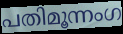
പതിമൂന്നംഗ